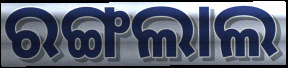
ରଙ୍ଗଲାଲ